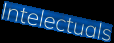
Intelectuals